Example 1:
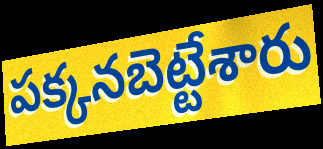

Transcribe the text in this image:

పక్కనబెట్టేశారు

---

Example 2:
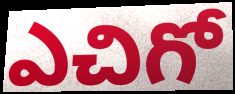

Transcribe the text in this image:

ఎచిగో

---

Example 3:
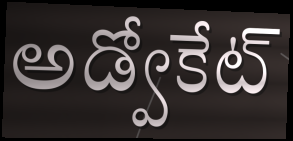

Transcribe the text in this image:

అడ్వోకేట్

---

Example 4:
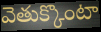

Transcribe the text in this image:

వెతుక్కొంటా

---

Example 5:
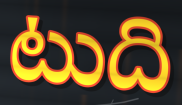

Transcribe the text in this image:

టుది